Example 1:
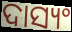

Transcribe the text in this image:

ଦାସ୍ୟଂ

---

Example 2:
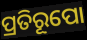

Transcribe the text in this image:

ପ୍ରତିରୂପୋ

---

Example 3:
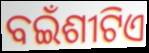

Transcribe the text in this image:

ବଇଁଶୀଟିଏ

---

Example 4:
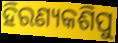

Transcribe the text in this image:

ହିରଣ୍ୟକଶିପୁ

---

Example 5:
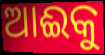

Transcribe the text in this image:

ଆଈକୁ